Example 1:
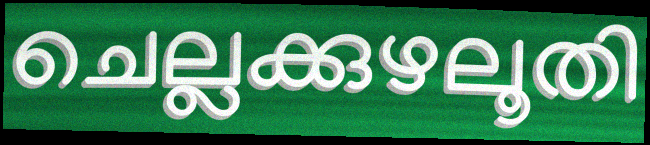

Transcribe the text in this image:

ചെല്ലക്കുഴലൂതി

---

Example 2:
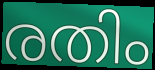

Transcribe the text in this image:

രതിം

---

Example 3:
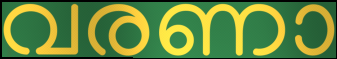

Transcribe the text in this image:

വരണാ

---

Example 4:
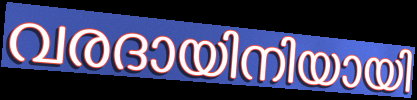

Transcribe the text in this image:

വരദായിനിയായി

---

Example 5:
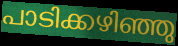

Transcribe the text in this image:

പാടിക്കഴിഞ്ഞു